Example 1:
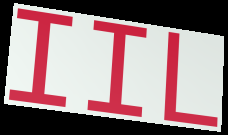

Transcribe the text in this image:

IIL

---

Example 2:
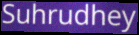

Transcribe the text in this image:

Suhrudhey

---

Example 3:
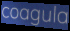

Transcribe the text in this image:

coagula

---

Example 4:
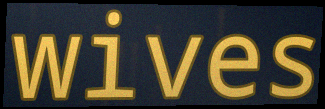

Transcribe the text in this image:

wives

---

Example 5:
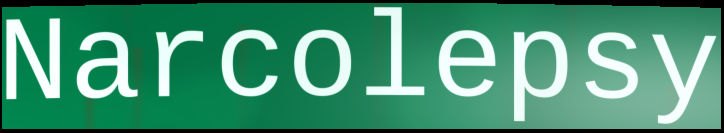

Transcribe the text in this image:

Narcolepsy